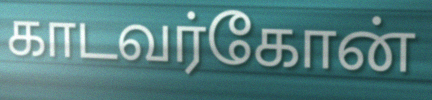
காடவர்கோன்